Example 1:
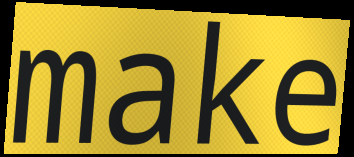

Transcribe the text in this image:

make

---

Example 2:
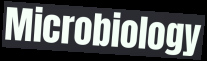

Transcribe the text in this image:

Microbiology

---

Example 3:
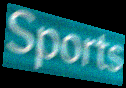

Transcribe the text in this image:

Sports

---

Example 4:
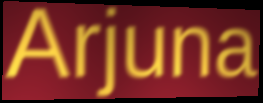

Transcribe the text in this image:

Arjuna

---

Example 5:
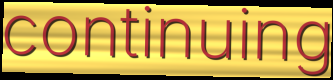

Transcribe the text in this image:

continuing